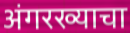
अंगरख्याचा